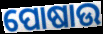
ପୋଷାଉ